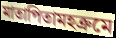
মাতাপিতামহক্রমে